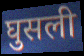
घुसली